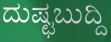
ದುಷ್ಟಬುದ್ದಿ